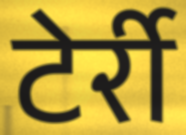
टेर्री